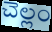
చెల్లం